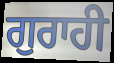
ਗੁਰਾਹੀ